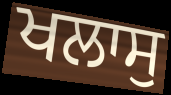
ਖਲਾਸੁ